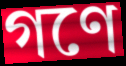
গণে